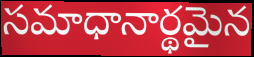
సమాధానార్థమైన